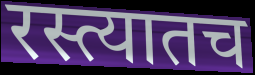
रस्त्यातच